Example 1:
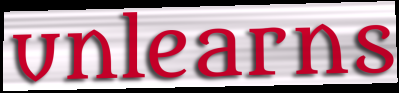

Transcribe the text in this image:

unlearns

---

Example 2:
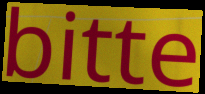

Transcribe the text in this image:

bitte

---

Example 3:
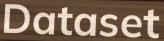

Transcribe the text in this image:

Dataset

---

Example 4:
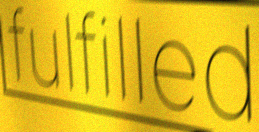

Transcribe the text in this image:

fulfilled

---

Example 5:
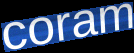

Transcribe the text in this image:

coram